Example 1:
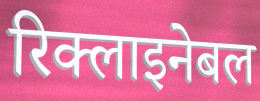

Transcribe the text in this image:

रिक्लाइनेबल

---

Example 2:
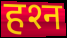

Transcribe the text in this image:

हश्न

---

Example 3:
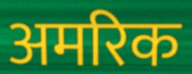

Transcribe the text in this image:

अमरिक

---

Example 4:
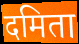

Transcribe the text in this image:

दमिता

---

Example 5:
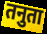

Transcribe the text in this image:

तनुता